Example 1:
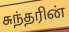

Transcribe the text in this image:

சுந்தரின்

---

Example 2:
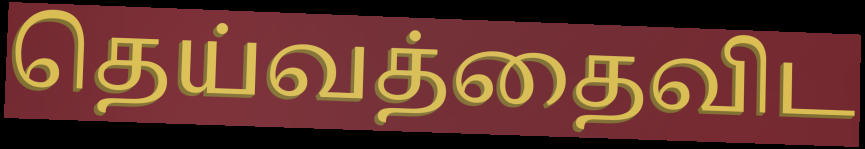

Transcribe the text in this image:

தெய்வத்தைவிட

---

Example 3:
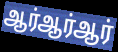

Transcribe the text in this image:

ஆர்ஆர்ஆர்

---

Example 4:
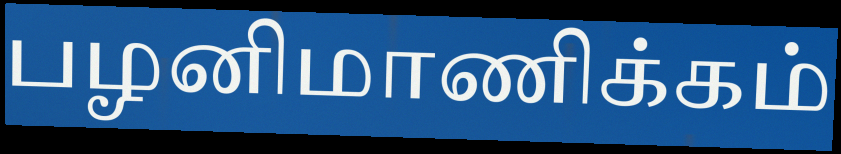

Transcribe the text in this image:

பழனிமாணிக்கம்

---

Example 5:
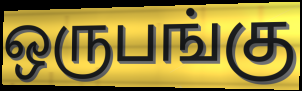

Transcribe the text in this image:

ஒருபங்கு